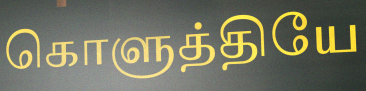
கொளுத்தியே